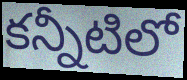
కన్నీటిలో